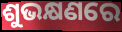
ଶୁଭକ୍ଷଣରେ